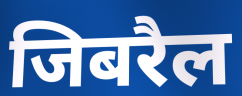
जिबरैल